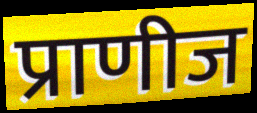
प्राणीज